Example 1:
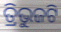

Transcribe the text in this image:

ତ୍ରିଭୁଜଟି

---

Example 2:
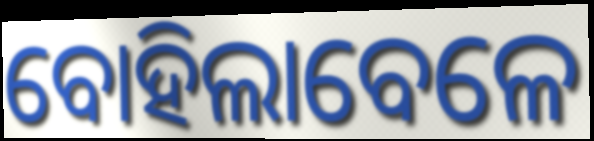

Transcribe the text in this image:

ବୋହିଲାବେଳେ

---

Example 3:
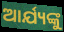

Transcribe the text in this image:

ଆର୍ଯ୍ୟଙ୍କୁ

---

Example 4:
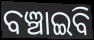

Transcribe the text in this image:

ବଞ୍ଚାଇବି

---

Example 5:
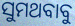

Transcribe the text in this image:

ସୁମଥବାବୁ